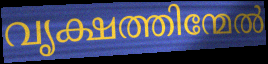
വൃക്ഷത്തിന്മേൽ